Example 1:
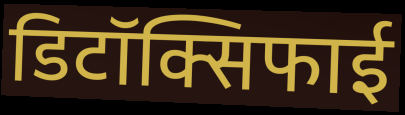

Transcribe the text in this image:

डिटॉक्सिफाई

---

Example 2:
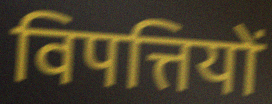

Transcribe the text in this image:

विपत्तियों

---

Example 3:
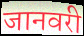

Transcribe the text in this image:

जानवरी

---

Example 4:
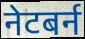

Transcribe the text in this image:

नेटबर्न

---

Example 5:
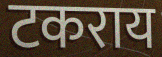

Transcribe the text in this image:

टकराय